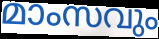
മാംസവും